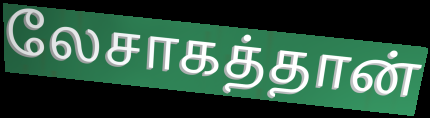
லேசாகத்தான்